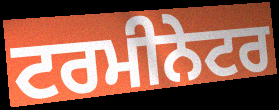
ਟਰਮੀਨੇਟਰ